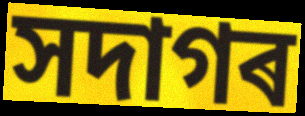
সদাগৰ